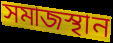
সমাজস্থান